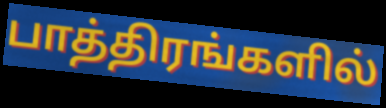
பாத்திரங்களில்